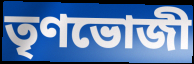
তৃণভোজী